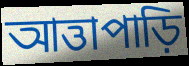
আত্তাপাড়ি